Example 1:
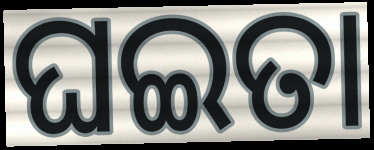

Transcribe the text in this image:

ଘଇତା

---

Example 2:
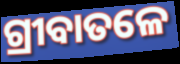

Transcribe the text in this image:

ଗ୍ରୀବାତଳେ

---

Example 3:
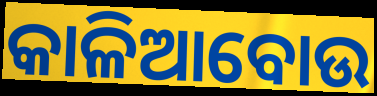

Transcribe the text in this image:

କାଳିଆବୋଉ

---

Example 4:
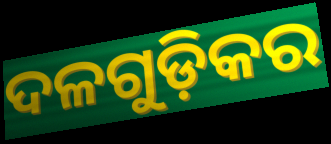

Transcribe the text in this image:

ଦଳଗୁଡ଼ିକର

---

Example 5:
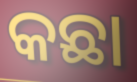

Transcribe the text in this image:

କଛା